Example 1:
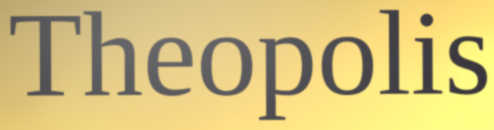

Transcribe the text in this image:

Theopolis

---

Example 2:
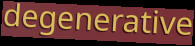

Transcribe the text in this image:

degenerative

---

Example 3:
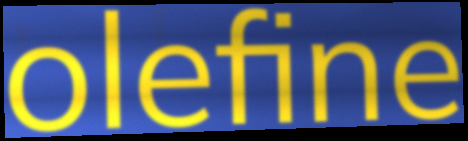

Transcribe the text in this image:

olefine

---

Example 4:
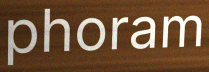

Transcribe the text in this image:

phoram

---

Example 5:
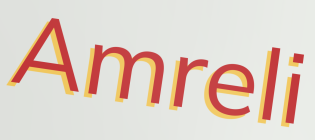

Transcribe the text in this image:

Amreli